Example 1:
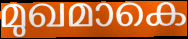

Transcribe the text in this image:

മുഖമാകെ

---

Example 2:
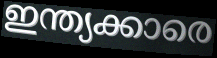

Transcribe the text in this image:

ഇന്ത്യക്കാരെ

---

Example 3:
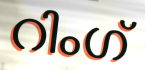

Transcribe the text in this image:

റിംഗ്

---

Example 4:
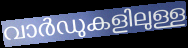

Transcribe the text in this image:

വാർഡുകളിലുള്ള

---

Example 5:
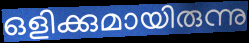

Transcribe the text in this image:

ഒളിക്കുമായിരുന്നു